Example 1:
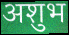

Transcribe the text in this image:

अशुभ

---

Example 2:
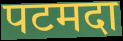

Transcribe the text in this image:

पटमदा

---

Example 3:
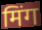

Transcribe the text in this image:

मिंग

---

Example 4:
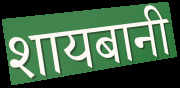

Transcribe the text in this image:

शायबानी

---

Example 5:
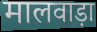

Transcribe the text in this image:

मालवाड़ा